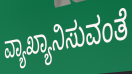
ವ್ಯಾಖ್ಯಾನಿಸುವಂತೆ